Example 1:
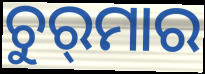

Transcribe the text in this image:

ଚୁର୍‍ମାର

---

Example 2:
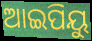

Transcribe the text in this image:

ଆଇପିୟୁ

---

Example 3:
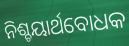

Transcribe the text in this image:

ନିଶ୍ଚୟାର୍ଥବୋଧକ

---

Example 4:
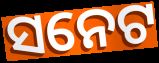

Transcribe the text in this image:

ସନେଟ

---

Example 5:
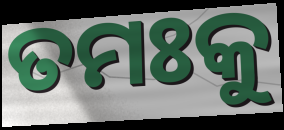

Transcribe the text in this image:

ତମଃକୁ